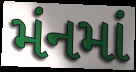
મંનમાં